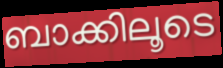
ബാക്കിലൂടെ